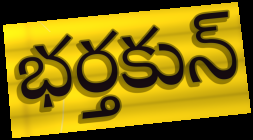
భర్తకున్